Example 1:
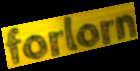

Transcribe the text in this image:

forlorn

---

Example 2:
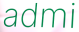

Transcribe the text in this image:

admi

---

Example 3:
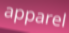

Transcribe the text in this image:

apparel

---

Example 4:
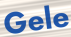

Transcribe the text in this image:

Gele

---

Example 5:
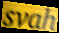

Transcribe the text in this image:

svah